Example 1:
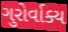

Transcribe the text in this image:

ગુરોર્વાક્ય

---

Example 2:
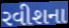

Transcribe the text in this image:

રવીશના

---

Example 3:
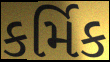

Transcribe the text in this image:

કર્મિક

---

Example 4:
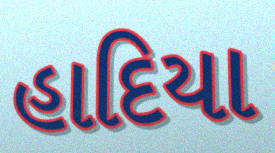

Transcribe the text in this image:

હાદિયા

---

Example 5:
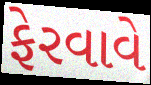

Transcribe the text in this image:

ફેરવાવે